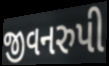
જીવનરુપી